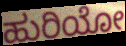
ಹುರಿಯೋ